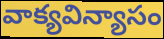
వాక్యవిన్యాసం